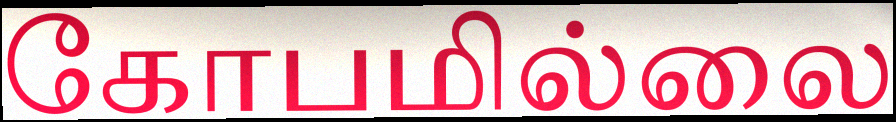
கோபமில்லை